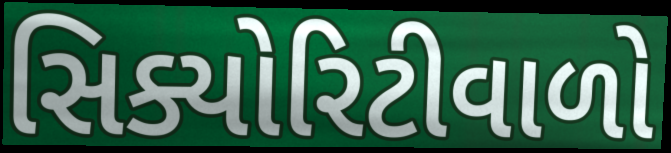
સિક્યોરિટીવાળો